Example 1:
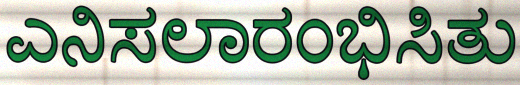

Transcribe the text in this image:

ಎನಿಸಲಾರಂಭಿಸಿತು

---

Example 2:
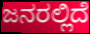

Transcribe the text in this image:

ಜನರಲ್ಲಿದೆ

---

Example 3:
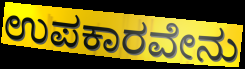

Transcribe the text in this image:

ಉಪಕಾರವೇನು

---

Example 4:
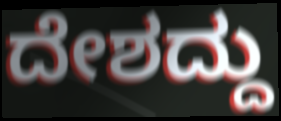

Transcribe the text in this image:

ದೇಶದ್ದು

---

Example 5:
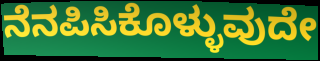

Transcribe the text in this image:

ನೆನಪಿಸಿಕೊಳ್ಳುವುದೇ